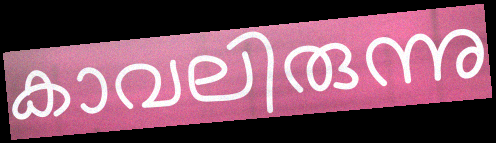
കാവലിരുന്നു